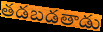
తడబడతాడు